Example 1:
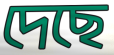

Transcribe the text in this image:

দেছে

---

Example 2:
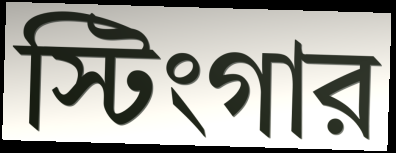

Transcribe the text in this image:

স্টিংগার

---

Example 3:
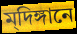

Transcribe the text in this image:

ম্‌দিঙ্গানে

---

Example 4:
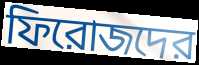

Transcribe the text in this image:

ফিরোজদের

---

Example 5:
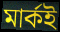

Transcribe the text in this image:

মার্কই